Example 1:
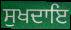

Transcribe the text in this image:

ਸੁਖਦਾਇ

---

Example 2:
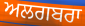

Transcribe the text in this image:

ਅਲਗਬਰਾ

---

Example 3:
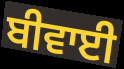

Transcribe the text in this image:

ਬੀਵਾਈ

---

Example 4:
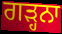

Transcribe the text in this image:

ਗੜ੍ਹਨਾ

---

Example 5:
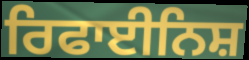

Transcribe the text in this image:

ਰਿਫਾਈਨਿਸ਼